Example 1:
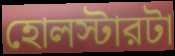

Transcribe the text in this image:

হোলস্টারটা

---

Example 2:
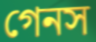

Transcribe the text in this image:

গেনস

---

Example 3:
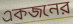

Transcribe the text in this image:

একজনের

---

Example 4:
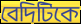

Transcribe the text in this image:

বেদিটিকে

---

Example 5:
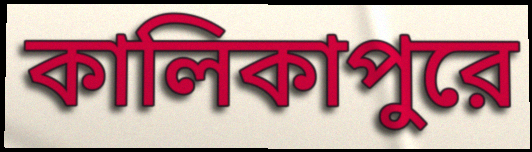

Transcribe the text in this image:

কালিকাপুরে